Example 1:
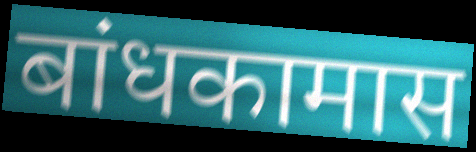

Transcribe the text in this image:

बांधकामास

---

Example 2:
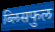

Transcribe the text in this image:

ब्लिसफुल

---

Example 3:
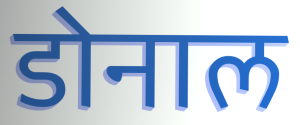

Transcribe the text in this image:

डोनाल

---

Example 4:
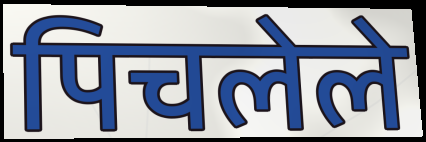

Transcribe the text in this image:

पिचलेले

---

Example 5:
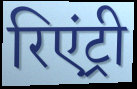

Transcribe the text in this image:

रिएंट्री